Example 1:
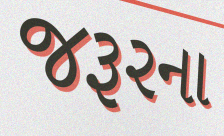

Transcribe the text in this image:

જરૂરના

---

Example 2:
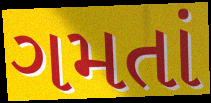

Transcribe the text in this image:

ગમતાં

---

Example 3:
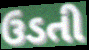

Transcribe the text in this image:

ઉડતી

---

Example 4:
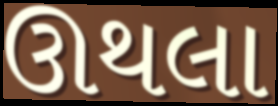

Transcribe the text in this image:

ઊથલા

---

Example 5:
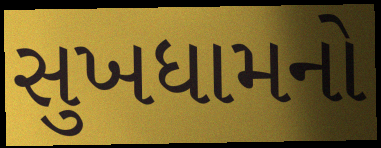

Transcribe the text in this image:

સુખધામનો